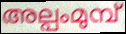
അല്പംമുമ്പ്